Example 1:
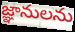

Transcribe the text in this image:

జ్ఞానులను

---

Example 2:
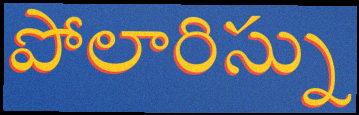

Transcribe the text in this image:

పోలారిస్ను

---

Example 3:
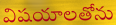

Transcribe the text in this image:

విషయాలతోను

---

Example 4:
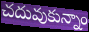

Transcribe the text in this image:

చదువుకున్నాం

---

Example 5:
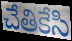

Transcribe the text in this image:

చేతికేసి